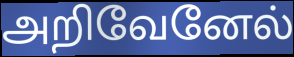
அறிவேனேல்